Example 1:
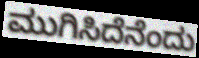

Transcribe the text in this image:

ಮುಗಿಸಿದೆನೆಂದು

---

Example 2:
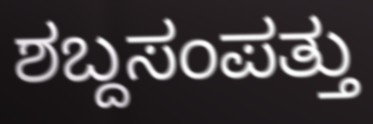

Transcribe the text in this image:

ಶಬ್ದಸಂಪತ್ತು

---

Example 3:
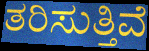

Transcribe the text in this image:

ತರಿಸುತ್ತಿವೆ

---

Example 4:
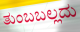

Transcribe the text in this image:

ತುಂಬಬಲ್ಲದು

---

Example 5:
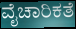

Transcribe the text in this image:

ವೈಚಾರಿಕತೆ